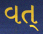
વત્